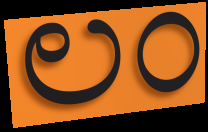
ಲಂ